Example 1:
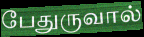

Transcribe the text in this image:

பேதுருவால்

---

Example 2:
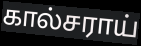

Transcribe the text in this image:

கால்சராய்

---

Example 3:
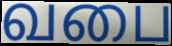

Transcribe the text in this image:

வபை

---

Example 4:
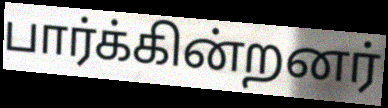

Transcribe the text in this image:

பார்க்கின்றனர்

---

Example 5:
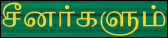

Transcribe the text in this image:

சீனர்களும்